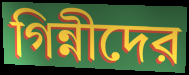
গিন্নীদের